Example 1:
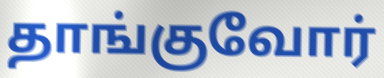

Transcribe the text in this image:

தாங்குவோர்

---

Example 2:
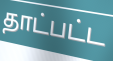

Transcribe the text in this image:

தாட்பட்ட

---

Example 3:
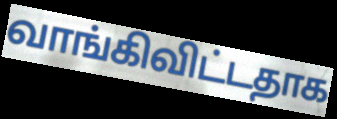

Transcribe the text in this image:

வாங்கிவிட்டதாக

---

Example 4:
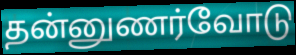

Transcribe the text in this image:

தன்னுணர்வோடு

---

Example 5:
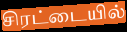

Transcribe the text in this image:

சிரட்டையில்